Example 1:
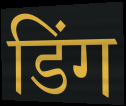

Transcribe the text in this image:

डिंग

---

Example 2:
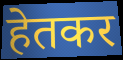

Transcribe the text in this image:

हेतकर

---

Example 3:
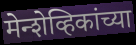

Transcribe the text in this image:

मेन्शेव्हिकांच्या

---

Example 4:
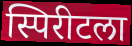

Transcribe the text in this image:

स्पिरीटला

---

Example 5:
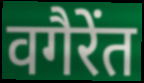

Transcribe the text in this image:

वगैरेंत